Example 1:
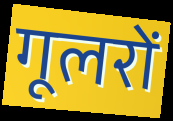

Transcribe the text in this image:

गूलरों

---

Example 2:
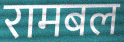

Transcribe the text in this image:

रामबल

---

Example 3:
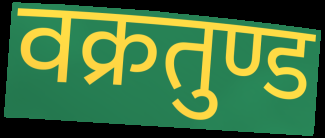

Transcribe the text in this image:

वक्रतुण्ड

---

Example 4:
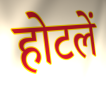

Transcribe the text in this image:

होटलें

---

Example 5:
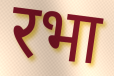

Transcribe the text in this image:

रभा